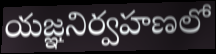
యజ్ఞనిర్వహణలో